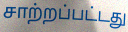
சாற்றப்பட்டது